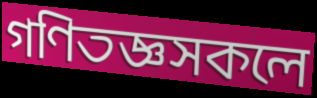
গণিতজ্ঞসকলে